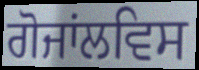
ਗੋਜਾਂਲਵਿਸ